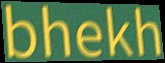
bhekh